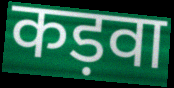
कड़वा